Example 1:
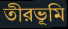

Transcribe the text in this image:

তীরভূমি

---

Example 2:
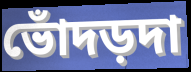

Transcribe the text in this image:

ভোঁদড়দা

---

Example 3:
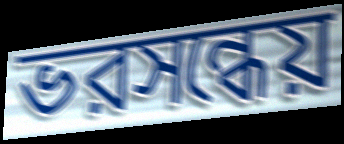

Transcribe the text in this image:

ভরসন্ধেয়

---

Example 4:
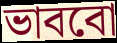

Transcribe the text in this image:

ভাববো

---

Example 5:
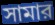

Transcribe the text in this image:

সামার